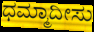
ಧಮ್ಮಾದೀಸು